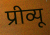
प्रीव्यू